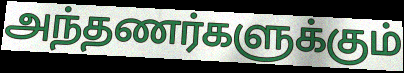
அந்தணர்களுக்கும்